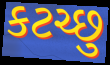
કટચ્છુ